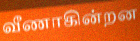
வீணாகின்றன